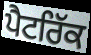
ਪੈਟਰਿੱਕ